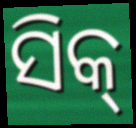
ସିକ୍